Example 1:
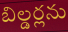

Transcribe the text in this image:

బిల్డర్లను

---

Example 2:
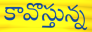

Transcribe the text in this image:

కావొస్తున్న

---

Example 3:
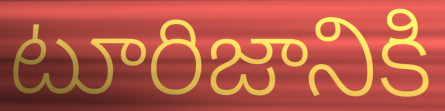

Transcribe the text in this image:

టూరిజానికి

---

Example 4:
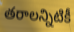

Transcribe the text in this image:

తరాలన్నిటికీ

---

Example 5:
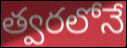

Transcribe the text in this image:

త్వరలోనే